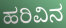
ಹರಿವಿನ